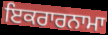
ਇਕਰਾਰਨਾਮਾ